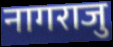
नागराजु